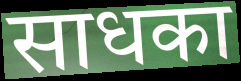
साधका